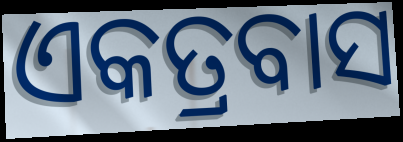
ଏକତ୍ରବାସ